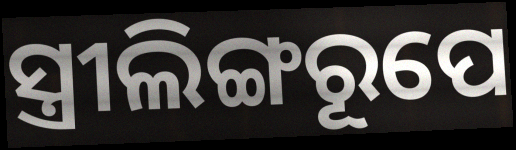
ସ୍ତ୍ରୀଲିଙ୍ଗରୂପେ